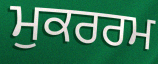
ਮੁਕਰਰਮ